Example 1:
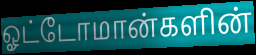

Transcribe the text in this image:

ஓட்டோமான்களின்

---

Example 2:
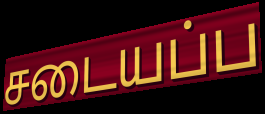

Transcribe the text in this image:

சடையப்ப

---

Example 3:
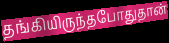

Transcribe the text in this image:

தங்கியிருந்தபோதுதான்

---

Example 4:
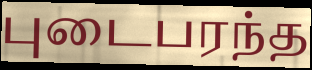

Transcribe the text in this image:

புடைபரந்த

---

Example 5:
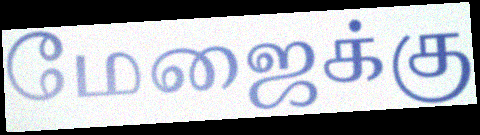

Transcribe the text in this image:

மேஜைக்கு